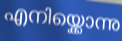
എനിയ്ക്കൊന്നു